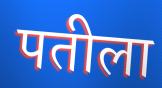
पतीला